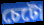
চেটো